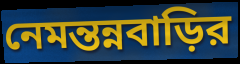
নেমন্তন্নবাড়ির